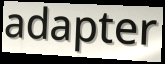
adapter